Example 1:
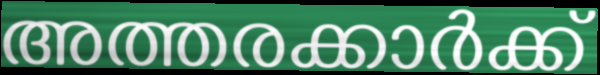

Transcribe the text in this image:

അത്തരക്കാർക്ക്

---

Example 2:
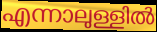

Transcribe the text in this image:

എന്നാലുള്ളിൽ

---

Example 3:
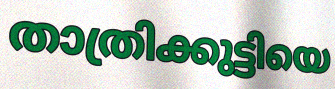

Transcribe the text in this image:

താത്രിക്കുട്ടിയെ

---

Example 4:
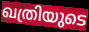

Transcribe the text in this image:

ഖത്രിയുടെ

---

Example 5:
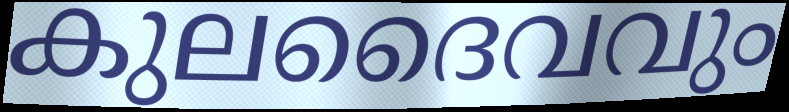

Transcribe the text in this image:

കുലദൈവവും